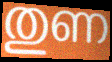
തുണ